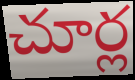
చూర్ల